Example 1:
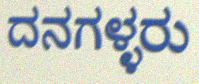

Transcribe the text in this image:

ದನಗಳ್ಳರು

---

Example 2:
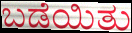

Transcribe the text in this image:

ಬಡೆಯಿತು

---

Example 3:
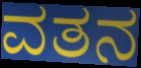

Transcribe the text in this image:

ವತನ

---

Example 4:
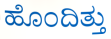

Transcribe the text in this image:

ಹೊಂದಿತ್ತು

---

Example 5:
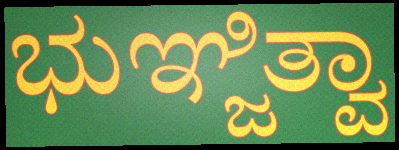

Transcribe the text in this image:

ಭುಞ್ಜಿತ್ವಾ